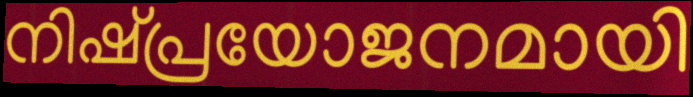
നിഷ്പ്രയോജനമായി